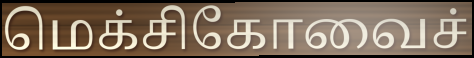
மெக்சிகோவைச்